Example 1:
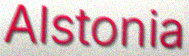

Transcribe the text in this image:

Alstonia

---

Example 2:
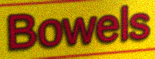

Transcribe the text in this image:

Bowels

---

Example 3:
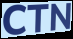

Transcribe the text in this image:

CTN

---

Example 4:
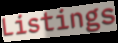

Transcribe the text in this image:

Listings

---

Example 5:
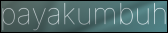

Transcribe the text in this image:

payakumbuh